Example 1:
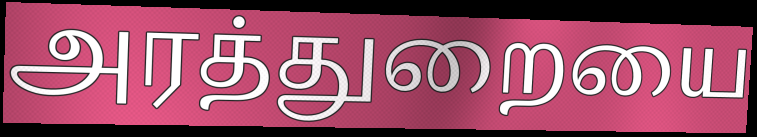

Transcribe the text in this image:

அரத்துறையை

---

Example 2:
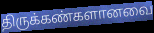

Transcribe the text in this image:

திருக்கண்களானவை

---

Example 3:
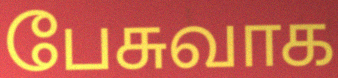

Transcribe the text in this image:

பேசுவாக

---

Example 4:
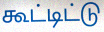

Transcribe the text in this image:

கூட்டிட்டு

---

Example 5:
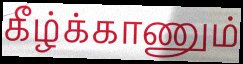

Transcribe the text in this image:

கீழ்க்காணும்